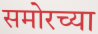
समोरच्या